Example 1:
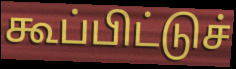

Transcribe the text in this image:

கூப்பிட்டுச்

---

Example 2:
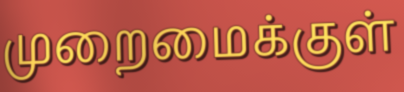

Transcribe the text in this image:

முறைமைக்குள்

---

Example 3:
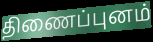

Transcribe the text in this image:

திணைப்புனம்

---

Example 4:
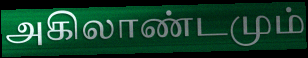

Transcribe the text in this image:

அகிலாண்டமும்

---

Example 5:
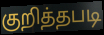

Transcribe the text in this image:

குறித்தபடி